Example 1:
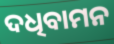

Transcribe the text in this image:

ଦଧିବାମନ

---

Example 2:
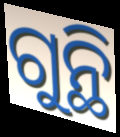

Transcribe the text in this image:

ଗୁନ୍ଥି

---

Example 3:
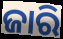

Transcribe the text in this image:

ଜାରି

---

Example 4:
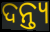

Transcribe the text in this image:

ଦନ୍ତ୍ୟ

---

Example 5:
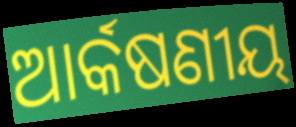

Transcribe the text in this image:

ଆର୍କଷଣୀୟ